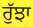
ਰੁੱਝਾ